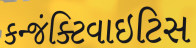
કન્જંક્ટિવાઇટિસ